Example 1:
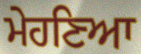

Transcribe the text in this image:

ਮੇਹਣਿਆ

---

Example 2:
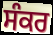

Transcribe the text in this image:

ਸੰਕਰ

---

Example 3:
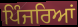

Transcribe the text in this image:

ਪਿੰਜਰਿਆਂ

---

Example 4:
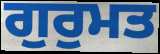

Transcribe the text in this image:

ਗੁਰੁਮਤ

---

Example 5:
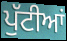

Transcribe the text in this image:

ਪੁੱਟੀਆਂ